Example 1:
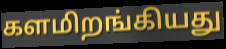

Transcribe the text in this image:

களமிறங்கியது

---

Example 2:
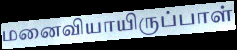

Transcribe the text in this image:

மனைவியாயிருப்பாள்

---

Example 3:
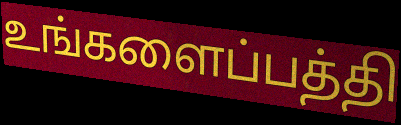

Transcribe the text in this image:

உங்களைப்பத்தி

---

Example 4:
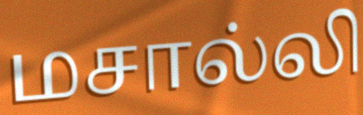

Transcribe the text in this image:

மசால்லி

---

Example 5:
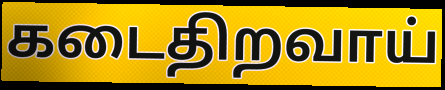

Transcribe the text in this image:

கடைதிறவாய்